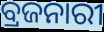
ବ୍ରଜନାରୀ